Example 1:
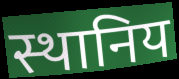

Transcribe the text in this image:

स्थानिय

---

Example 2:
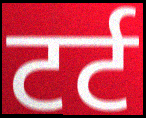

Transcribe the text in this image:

टर्ट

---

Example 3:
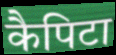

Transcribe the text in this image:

कैपिटा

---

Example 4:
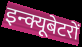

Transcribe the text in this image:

इन्क्यूबेटरों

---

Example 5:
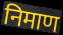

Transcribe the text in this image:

निमाण